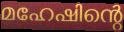
മഹേഷിന്റെ